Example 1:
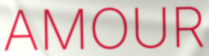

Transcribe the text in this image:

AMOUR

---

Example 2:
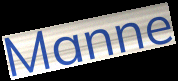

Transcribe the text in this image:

Manne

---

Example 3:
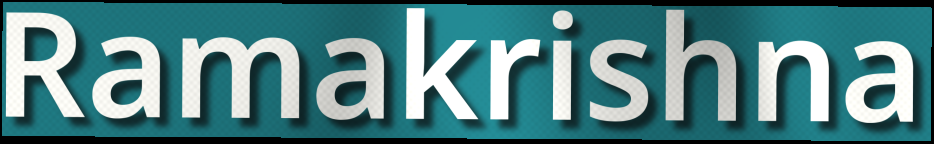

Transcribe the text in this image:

Ramakrishna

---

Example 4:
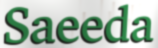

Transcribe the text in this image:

Saeeda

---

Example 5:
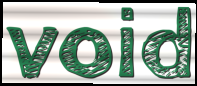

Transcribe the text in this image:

void